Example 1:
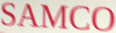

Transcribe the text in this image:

SAMCO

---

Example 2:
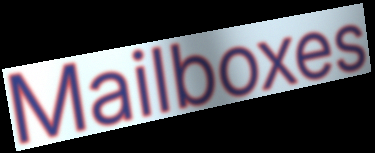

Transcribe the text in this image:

Mailboxes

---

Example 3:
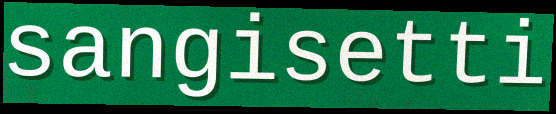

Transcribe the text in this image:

sangisetti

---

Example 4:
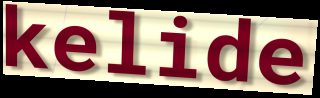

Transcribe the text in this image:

kelide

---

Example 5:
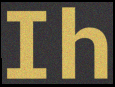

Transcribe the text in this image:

Ih